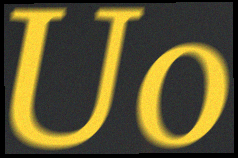
Uo